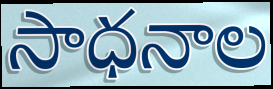
సాధనాల